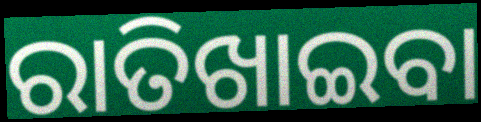
ରାତିଖାଇବା